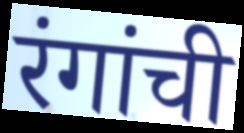
रंगांची